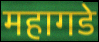
महागडे